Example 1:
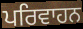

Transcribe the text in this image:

ਪਰਿਵਾਹਨ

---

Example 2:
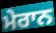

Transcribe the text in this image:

ਮੇਰਾਨ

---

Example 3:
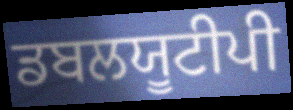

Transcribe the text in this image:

ਡਬਲਯੂਟੀਪੀ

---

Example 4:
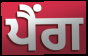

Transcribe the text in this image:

ਪੈਂਗ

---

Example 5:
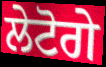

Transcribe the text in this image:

ਲੇਟੋਗੇ